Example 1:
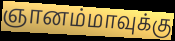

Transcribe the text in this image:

ஞானம்மாவுக்கு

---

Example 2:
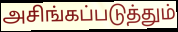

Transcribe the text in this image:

அசிங்கப்படுத்தும்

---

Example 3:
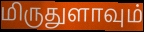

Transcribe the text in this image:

மிருதுளாவும்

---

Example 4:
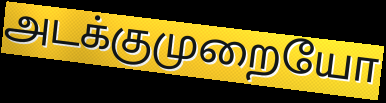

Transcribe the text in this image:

அடக்குமுறையோ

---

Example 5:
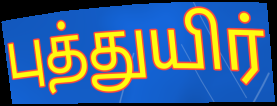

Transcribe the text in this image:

புத்துயிர்